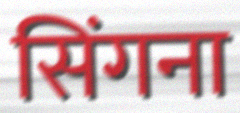
सिंगना